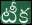
టీక